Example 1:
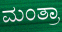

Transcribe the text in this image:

ಮಂತ್ರಾ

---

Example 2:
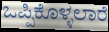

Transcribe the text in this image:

ಒಪ್ಪಿಕೊಳ್ಳಲಾರೆ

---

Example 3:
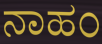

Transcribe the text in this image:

ನಾಹಂ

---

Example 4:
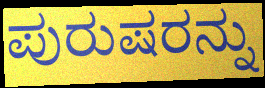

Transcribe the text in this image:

ಪುರುಷರನ್ನು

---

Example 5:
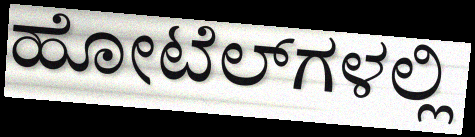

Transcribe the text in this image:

ಹೋಟೆಲ್‌ಗಳಲ್ಲಿ